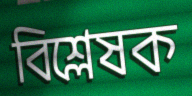
বিশ্লেষক